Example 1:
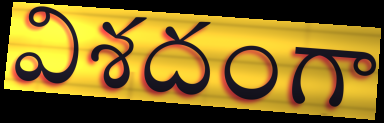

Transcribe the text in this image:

విశదంగా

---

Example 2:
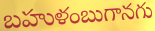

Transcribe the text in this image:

బహుళంబుగానగు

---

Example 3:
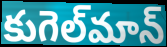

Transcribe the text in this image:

కుగెల్‌మాన్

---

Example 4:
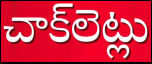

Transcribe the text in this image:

చాక్‌లెట్లు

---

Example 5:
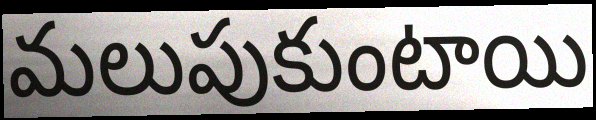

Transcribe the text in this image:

మలుపుకుంటాయి